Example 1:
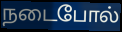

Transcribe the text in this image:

நடைபோல்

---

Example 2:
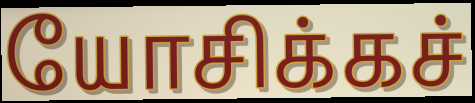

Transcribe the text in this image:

யோசிக்கச்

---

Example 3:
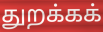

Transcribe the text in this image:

துறக்கக்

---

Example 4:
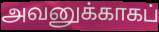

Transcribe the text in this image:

அவனுக்காகப்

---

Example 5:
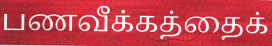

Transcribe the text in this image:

பணவீக்கத்தைக்